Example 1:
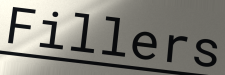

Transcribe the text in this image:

Fillers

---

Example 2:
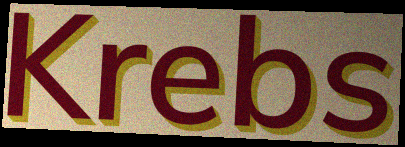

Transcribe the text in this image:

Krebs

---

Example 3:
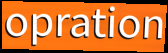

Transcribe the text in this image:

opration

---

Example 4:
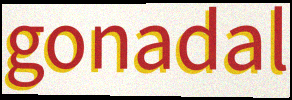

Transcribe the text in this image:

gonadal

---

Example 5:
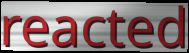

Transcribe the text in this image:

reacted